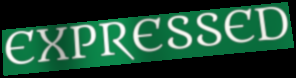
EXPRESSED